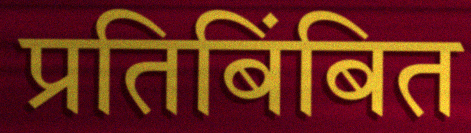
प्रतिबिंबित